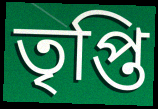
তৃপ্তি